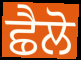
ਛੈਲੋ